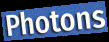
Photons